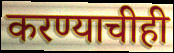
करण्याचीही